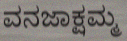
ವನಜಾಕ್ಷಮ್ಮ